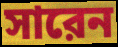
সারেন